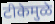
टीकेमुळे